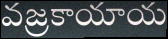
వజ్రకాయాయ